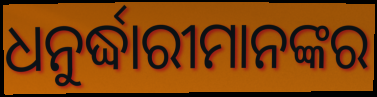
ଧନୁର୍ଦ୍ଧାରୀମାନଙ୍କର